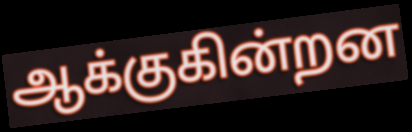
ஆக்குகின்றன